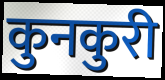
कुनकुरी